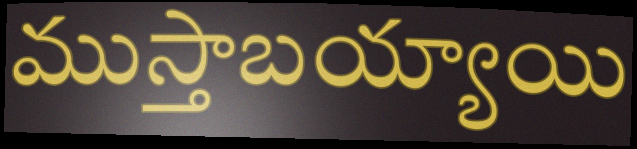
ముస్తాబయ్యాయి